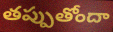
తప్పుతోందా